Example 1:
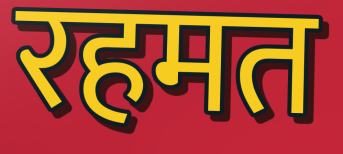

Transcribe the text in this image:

रहमत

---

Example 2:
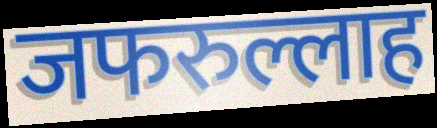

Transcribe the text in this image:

जफरुल्लाह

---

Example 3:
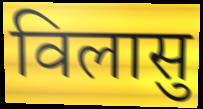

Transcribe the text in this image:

विलासु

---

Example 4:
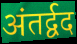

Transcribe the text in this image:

अंतर्द्वद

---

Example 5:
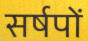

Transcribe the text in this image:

सर्षपों